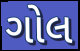
ગોલ